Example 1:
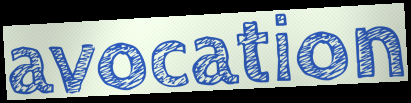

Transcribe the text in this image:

avocation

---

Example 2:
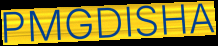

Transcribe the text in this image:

PMGDISHA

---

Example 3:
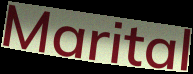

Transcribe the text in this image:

Marital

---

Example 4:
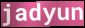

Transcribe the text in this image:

jadyun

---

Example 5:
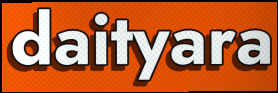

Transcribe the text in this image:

daityara